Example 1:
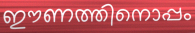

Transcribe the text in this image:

ഈണത്തിനൊപ്പം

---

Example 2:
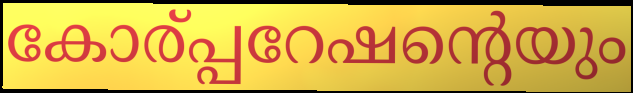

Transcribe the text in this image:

കോര്പ്പറേഷന്റെയും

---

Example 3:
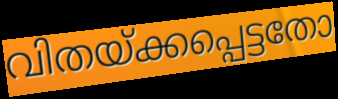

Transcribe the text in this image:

വിതയ്ക്കപ്പെട്ടതോ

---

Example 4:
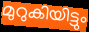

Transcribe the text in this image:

മുറുകിയിട്ടും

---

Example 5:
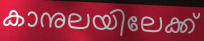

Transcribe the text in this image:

കാനുലയിലേക്ക്